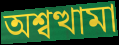
অশ্বত্থামা